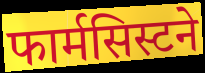
फार्मसिस्टने